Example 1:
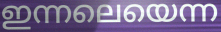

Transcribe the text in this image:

ഇന്നലെയെന്ന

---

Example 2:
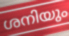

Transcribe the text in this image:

ശനിയും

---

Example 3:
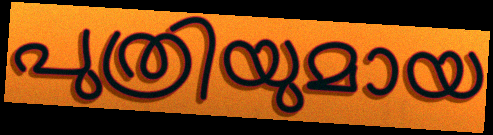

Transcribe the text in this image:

പുത്രിയുമായ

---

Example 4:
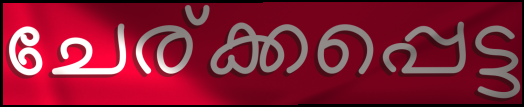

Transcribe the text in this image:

ചേര്ക്കപ്പെട്ട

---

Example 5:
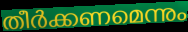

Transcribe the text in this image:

തീർക്കണമെന്നും